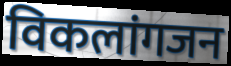
विकलांगजन